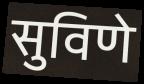
सुविणे